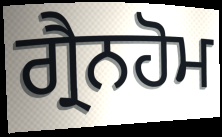
ਗ੍ਰੈਨਹੋਮ